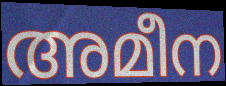
അമീന